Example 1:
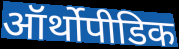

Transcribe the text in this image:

ऑर्थोपीडिक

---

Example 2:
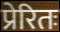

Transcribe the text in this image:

प्रेरितः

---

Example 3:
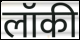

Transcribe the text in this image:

लॉकी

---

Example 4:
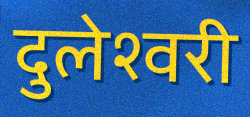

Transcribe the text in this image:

दुलेश्वरी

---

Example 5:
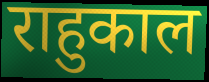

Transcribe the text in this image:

राहुकाल